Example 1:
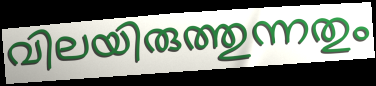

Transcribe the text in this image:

വിലയിരുത്തുന്നതും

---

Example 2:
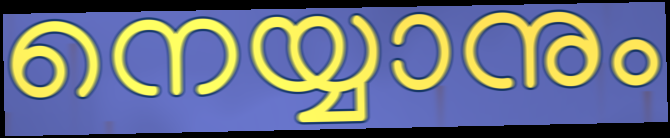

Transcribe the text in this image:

നെയ്യാനും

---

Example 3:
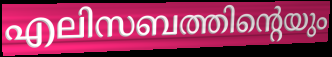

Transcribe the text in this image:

എലിസബത്തിന്റെയും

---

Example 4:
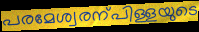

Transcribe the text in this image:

പരമേശ്വരന്പിള്ളയുടെ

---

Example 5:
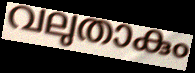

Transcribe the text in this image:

വലുതാകും